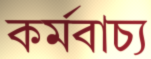
কৰ্মবাচ্য